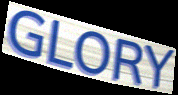
GLORY